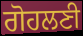
ਗੋਹਲਣੀ